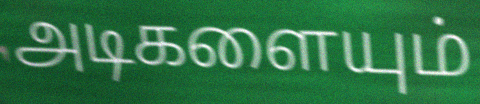
அடிகளையும்